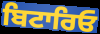
ਬਿਟਾਰਿਓ